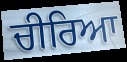
ਚੀਰਿਆ